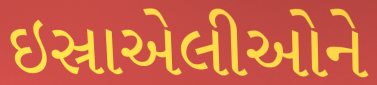
ઇસ્રાએલીઓને